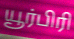
யூர்பிரி